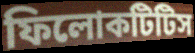
ফিলোকটিটিস